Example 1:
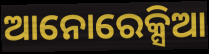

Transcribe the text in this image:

ଆନୋରେକ୍ସିଆ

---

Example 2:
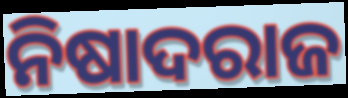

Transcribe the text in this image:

ନିଷାଦରାଜ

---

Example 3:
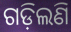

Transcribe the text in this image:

ଗଡ଼ିଲଣି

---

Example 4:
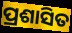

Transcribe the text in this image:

ପ୍ରଶାସିତ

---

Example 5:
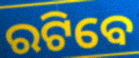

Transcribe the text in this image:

ରଟିବେ